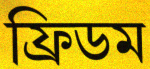
ফ্রিডম